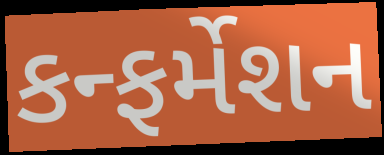
કન્ફર્મેશન